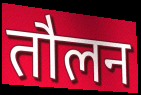
तौलन